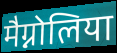
मैग्नोलिया